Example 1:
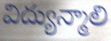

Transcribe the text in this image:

విద్యున్మాలి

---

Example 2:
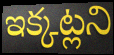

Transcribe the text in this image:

ఇక్కట్లని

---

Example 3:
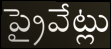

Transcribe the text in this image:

ప్రైవేట్లు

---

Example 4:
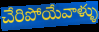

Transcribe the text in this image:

చేరిపోయేవాళ్ళు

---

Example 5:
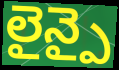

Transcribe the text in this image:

లైన్పై